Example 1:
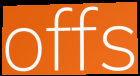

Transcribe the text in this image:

offs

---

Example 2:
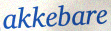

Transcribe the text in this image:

akkebare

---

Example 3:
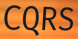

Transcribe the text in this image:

CQRS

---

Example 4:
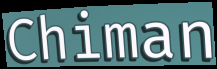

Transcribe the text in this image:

Chiman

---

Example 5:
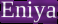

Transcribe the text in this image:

Eniya